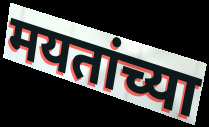
मयतांच्या